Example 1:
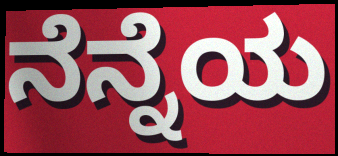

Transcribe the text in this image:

ನೆನ್ನೆಯ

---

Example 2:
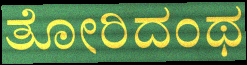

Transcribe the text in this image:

ತೋರಿದಂಥ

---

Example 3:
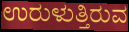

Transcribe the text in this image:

ಉರುಳುತ್ತಿರುವ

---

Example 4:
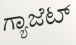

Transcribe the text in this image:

ಗ್ಯಾಜೆಟ್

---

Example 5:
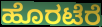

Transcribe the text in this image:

ಹೊರಟೆರೆ